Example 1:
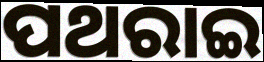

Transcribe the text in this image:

ପଥରାଇ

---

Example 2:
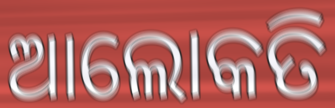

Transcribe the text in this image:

ଆଲୋକତି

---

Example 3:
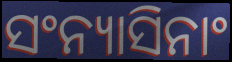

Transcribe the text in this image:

ସଂନ୍ୟାସିନାଂ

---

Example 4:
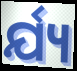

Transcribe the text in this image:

ର୍ଯ୍ୟ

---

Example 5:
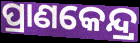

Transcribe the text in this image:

ପ୍ରାଣକେନ୍ଦ୍ର